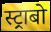
स्ट्राबो